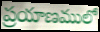
ప్రయాణములో